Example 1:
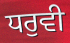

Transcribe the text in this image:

ਧਰੁਵੀ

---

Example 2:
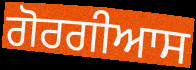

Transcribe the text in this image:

ਗੋਰਗੀਆਸ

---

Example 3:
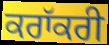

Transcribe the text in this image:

ਕਰਾੱਕਰੀ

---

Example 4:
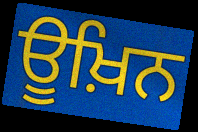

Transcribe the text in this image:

ਊਖ਼ਿਨ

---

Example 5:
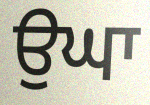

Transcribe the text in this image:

ਉਘਾ